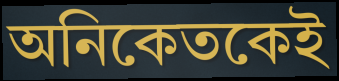
অনিকেতকেই